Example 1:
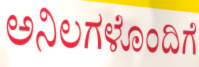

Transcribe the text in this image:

ಅನಿಲಗಳೊಂದಿಗೆ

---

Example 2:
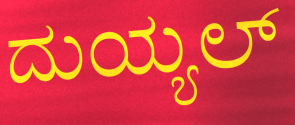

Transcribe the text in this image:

ದುಯ್ಯಲ್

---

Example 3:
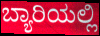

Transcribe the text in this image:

ಬ್ಯಾರಿಯಲ್ಲಿ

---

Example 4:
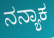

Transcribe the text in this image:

ನನ್ಯಾಕ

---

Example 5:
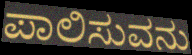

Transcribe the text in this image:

ಪಾಲಿಸುವನು